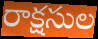
రాక్షసుల